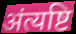
अंत्यष्टि